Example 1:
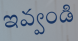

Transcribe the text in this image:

ఇవ్వండి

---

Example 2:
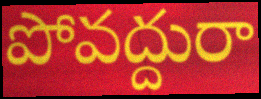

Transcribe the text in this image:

పోవద్దురా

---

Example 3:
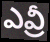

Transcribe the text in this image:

ఎవ్రీ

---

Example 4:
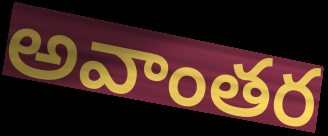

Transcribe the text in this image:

అవాంతర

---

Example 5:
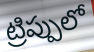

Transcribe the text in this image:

ట్రిప్పులో